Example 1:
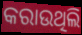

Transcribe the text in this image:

କରାଉଥିଲି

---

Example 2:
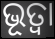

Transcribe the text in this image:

ଭୂତ୍ଵା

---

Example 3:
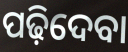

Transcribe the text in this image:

ପଢ଼ିଦେବା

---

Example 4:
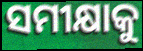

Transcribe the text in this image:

ସମୀକ୍ଷାକୁ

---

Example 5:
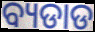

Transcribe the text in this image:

ବ୍ୟଡାଡ